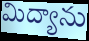
మిద్యాను